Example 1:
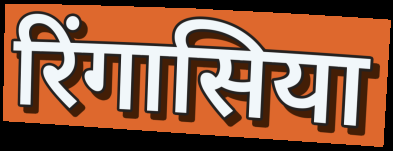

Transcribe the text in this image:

रिंगासिया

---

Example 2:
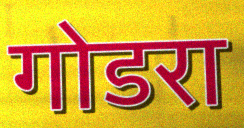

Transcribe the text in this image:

गोडरा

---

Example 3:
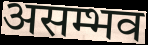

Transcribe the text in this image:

असम्भव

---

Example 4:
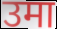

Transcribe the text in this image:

उमा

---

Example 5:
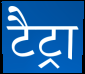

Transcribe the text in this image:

टैट्रा